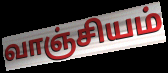
வாஞ்சியம்